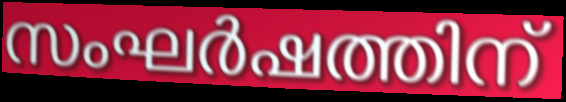
സംഘർഷത്തിന്